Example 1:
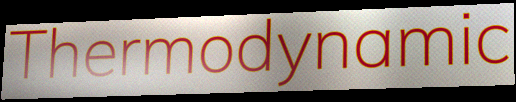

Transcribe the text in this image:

Thermodynamic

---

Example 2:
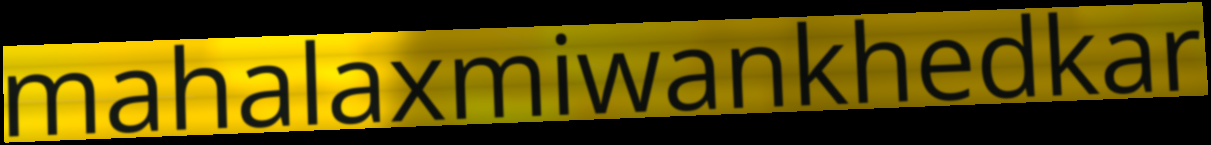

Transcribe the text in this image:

mahalaxmiwankhedkar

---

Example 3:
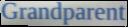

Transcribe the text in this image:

Grandparent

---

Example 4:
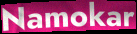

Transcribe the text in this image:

Namokar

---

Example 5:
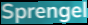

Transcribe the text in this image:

Sprengel